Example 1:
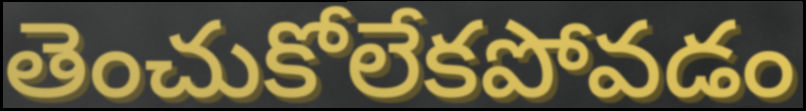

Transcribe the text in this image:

తెంచుకోలేకపోవడం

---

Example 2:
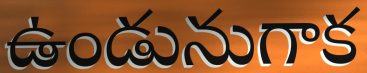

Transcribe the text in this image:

ఉండునుగాక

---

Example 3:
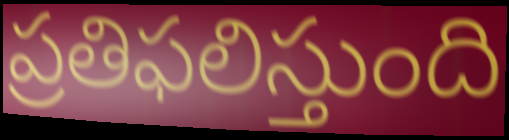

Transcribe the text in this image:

ప్రతిఫలిస్తుంది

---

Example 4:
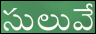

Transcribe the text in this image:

సులువే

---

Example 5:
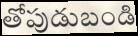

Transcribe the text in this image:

తోపుడుబండి